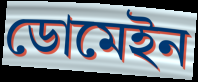
ডোমেইন